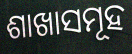
ଶାଖାସମୂହ